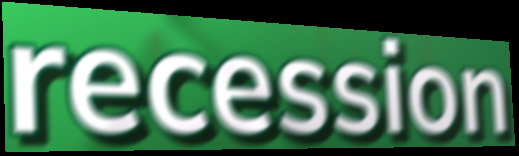
recession